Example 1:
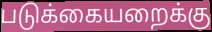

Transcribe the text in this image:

படுக்கையறைக்கு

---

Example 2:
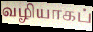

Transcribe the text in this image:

வழியாகப்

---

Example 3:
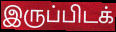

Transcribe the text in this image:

இருப்பிடக்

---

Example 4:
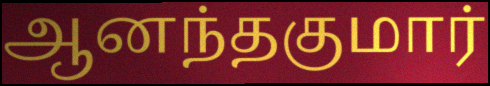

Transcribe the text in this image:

ஆனந்தகுமார்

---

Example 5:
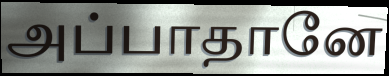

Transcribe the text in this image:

அப்பாதானே